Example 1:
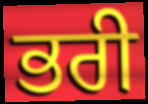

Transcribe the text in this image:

ਭਰੀ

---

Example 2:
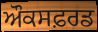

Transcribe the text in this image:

ਔਕਸਫ਼ਰਡ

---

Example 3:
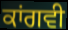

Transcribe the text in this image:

ਕਾਂਗਵੀ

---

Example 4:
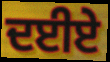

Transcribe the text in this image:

ਦਈਏ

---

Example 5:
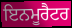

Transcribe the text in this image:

ਇਨਮੂਰੈਟਰ